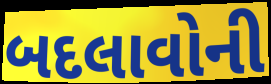
બદલાવોની